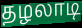
தழலாடி